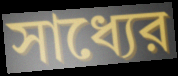
সাধ্যের